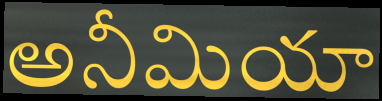
అనీమియా